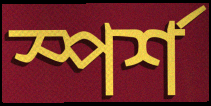
স্পর্শ